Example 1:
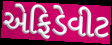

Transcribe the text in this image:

એફિડેવીટ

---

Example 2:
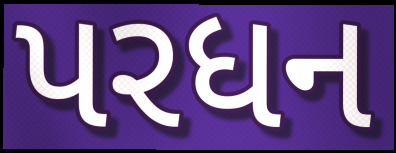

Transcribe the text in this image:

પરધન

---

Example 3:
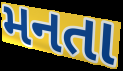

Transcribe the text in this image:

મનતા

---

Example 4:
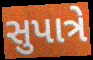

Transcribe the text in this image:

સુપાત્રે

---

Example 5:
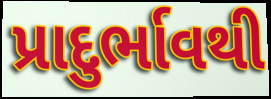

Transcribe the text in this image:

પ્રાદુર્ભાવથી